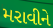
મરાવીને